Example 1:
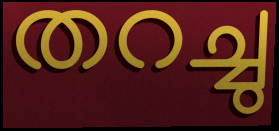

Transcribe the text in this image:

തറച്ചു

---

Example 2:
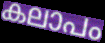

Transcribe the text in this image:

കലാപം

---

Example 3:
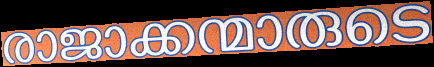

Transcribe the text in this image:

രാജാക്കന്മാരുടെ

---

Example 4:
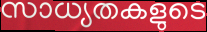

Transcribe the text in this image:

സാധ്യതകളുടെ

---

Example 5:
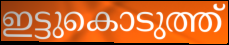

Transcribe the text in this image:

ഇട്ടുകൊടുത്ത്